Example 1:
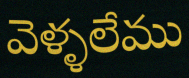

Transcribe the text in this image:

వెళ్ళలేము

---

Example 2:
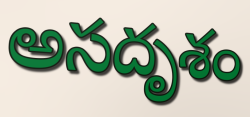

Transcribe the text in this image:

అసదృశం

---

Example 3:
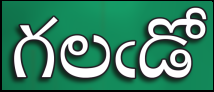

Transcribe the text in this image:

గలఁడో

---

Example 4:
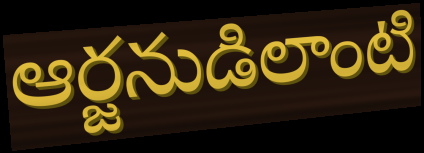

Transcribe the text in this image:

ఆర్జనుడిలాంటి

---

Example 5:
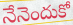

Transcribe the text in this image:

నేనెందుకో